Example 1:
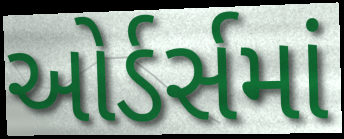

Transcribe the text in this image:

ઓર્ડર્સમાં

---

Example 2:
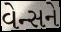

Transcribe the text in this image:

વેન્સને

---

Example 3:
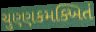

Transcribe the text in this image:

ચુણ્ણકમક્ખિતં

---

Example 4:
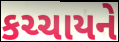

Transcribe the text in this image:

કચ્ચાયને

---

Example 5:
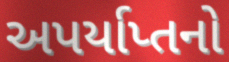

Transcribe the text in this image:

અપર્યાપ્તનો